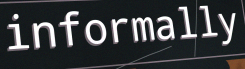
informally